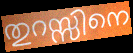
തുറസ്സിനെ